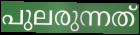
പുലരുന്നത്